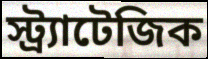
স্ট্র্যাটেজিক